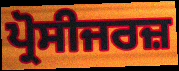
ਪ੍ਰੋਸੀਜਰਜ਼